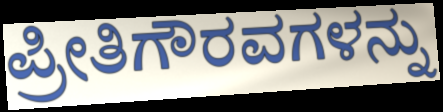
ಪ್ರೀತಿಗೌರವಗಳನ್ನು